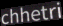
chhetri